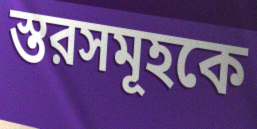
স্তরসমূহকে